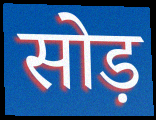
सोड़